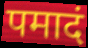
पमादं